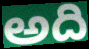
అది